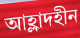
আহ্লাদহীন